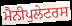
ਮੈਨੀਪੁਲੇਟਰਸ